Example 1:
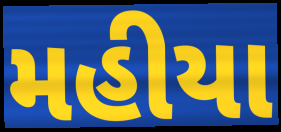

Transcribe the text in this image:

મહીયા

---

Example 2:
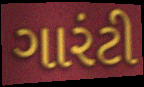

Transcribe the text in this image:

ગારંટી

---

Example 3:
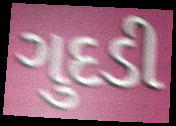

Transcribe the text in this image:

ગુદડી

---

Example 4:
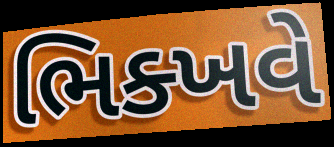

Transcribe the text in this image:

ભિક્ખવે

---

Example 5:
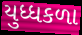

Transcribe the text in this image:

યુધ્ધકળા